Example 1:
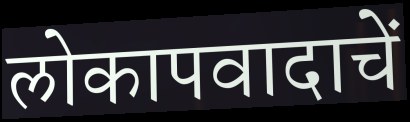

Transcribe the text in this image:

लोकापवादाचें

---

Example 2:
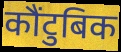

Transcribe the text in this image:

कौंटुबिक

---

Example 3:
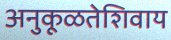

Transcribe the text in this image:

अनुकूळतेशिवाय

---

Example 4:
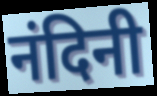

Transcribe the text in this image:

नंदिनी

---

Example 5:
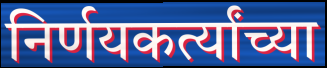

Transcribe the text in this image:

निर्णयकर्त्यांच्या